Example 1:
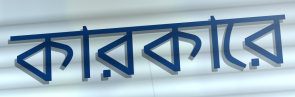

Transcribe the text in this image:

কারকারে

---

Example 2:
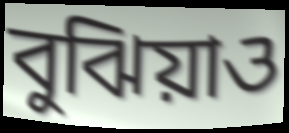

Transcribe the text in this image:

বুঝিয়াও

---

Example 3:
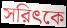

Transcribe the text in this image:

সরিৎকে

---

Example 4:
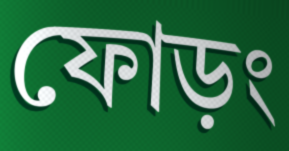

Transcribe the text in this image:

ফোড়ং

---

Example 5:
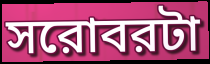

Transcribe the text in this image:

সরোবরটা